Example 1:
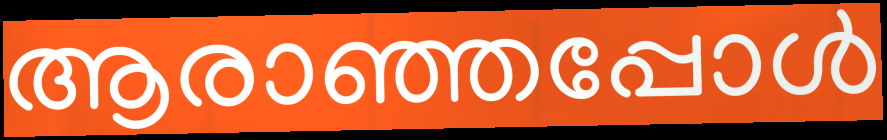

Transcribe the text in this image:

ആരാഞ്ഞപ്പോൾ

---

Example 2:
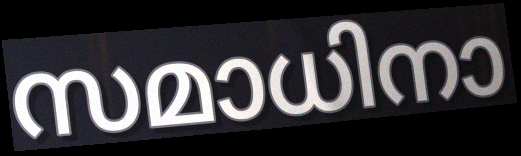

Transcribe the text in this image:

സമാധിനാ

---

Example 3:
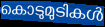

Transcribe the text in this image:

കൊടുമുടികൾ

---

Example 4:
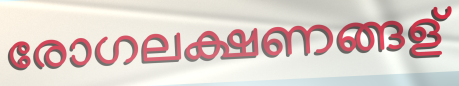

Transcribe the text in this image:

രോഗലക്ഷണങ്ങള്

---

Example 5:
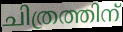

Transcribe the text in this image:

ചിത്രത്തിന്